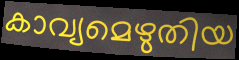
കാവ്യമെഴുതിയ